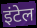
इंटेल